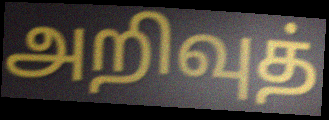
அறிவுத்